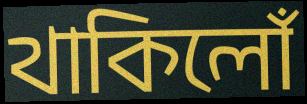
থাকিলোঁ